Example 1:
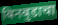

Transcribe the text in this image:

बिनबुडाचा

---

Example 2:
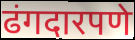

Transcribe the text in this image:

ढंगदारपणे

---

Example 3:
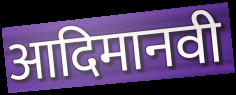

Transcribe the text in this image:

आदिमानवी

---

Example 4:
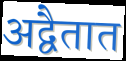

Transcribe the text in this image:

अद्वैतात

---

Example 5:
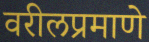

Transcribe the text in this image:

वरीलप्रमाणे